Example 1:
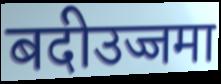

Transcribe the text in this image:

बदीउज्जमा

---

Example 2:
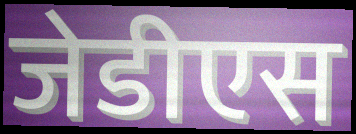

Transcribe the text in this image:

जेडीएस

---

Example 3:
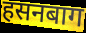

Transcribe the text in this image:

हसनबाग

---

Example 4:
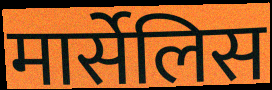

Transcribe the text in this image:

मार्सेलिस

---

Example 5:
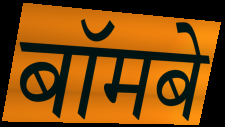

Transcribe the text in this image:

बॉमबे